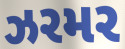
ઝરમર